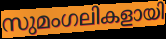
സുമംഗലികളായി